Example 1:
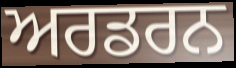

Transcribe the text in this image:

ਅਰਡਰਨ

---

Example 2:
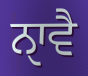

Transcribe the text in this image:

ਨੑਾਵੈ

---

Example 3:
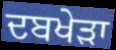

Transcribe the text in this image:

ਦਬਖੇੜਾ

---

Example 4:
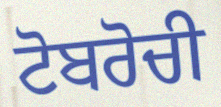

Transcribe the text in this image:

ਟੋਬਰੋਚੀ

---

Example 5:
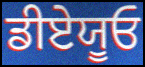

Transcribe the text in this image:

ਡੀਏਯੂਓ